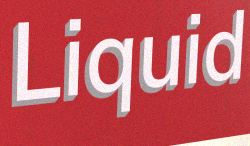
Liquid